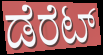
ಡೆರೆಟ್